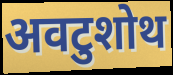
अवटुशोथ